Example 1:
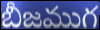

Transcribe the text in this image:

బీజముగ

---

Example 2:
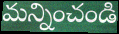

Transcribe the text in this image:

మన్నించండి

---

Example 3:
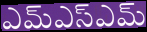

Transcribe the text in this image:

ఎమ్ఎస్ఎమ్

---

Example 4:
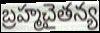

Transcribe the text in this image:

బ్రహ్మచైతన్య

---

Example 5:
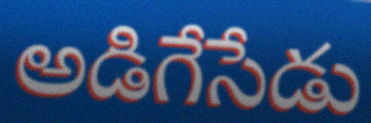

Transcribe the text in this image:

అడిగేసేడు